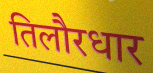
तिलौरधार